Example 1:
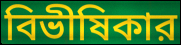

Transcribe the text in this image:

বিভীষিকার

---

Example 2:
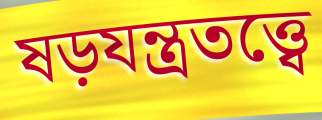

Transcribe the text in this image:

ষড়যন্ত্রতত্ত্বে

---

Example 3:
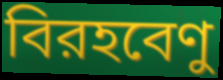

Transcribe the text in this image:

বিরহবেণু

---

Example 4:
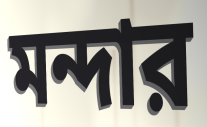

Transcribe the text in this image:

মন্দার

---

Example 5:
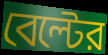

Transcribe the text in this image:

বেল্টের